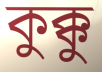
কুক্কু